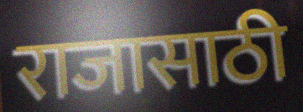
राजासाठी